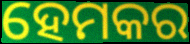
ହେମକର